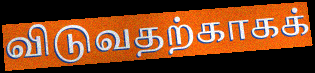
விடுவதற்காகக்